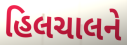
હિલચાલને